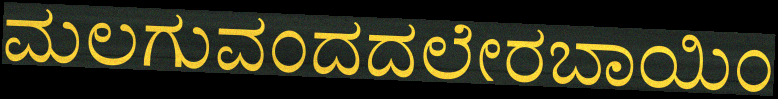
ಮಲಗುವಂದದಲೇರಬಾಯಿಂ